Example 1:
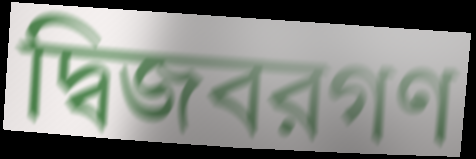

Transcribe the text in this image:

দ্বিজবরগণ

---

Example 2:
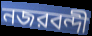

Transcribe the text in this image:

নজরবন্দী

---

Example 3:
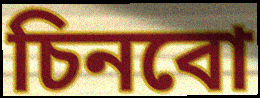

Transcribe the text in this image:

চিনবো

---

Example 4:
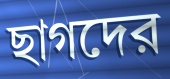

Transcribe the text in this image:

ছাগদের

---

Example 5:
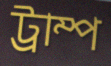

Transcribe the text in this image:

ট্রাম্প